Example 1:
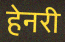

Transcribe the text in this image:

हेनरी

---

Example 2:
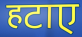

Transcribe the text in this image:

हटाए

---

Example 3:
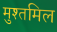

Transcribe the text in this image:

मुश्तमिल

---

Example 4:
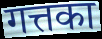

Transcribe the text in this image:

गत्तका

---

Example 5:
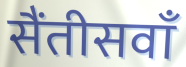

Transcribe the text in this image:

सैंतीसवाँ